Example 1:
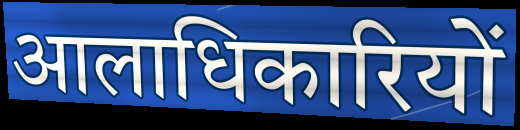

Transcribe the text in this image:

आलाधिकारियों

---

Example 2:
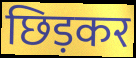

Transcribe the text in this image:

छिड़कर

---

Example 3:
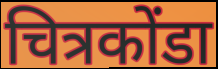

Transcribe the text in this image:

चित्रकोंडा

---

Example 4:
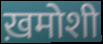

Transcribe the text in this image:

ख़मोशी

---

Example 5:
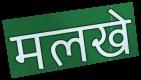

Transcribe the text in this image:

मलखे